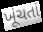
ખૂંચતાં